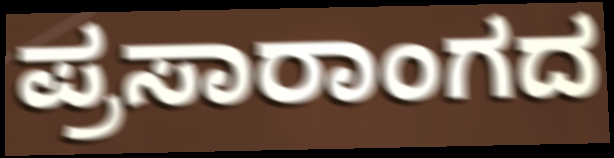
ಪ್ರಸಾರಾಂಗದ